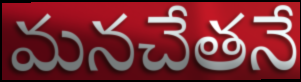
మనచేతనే